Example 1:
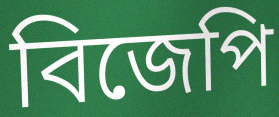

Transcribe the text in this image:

বিজেপি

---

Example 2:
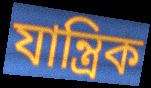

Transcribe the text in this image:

যান্ত্ৰিক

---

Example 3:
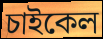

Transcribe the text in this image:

চাইকেল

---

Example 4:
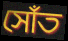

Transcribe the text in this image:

সোঁত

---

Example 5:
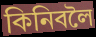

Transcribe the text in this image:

কিনিবলৈ